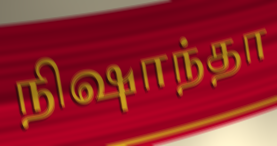
நிஷாந்தா